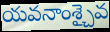
యవనాంశ్చైవ